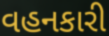
વહનકારી